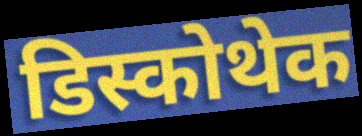
डिस्कोथेक